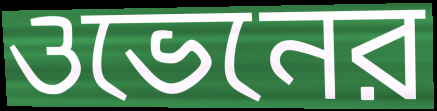
ওভেনের